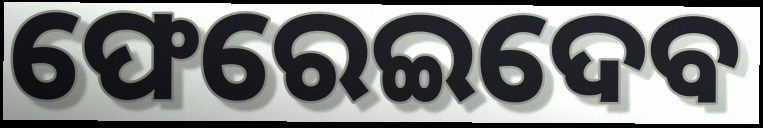
ଫେରେଇଦେବ